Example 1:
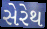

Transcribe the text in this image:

સેરેથ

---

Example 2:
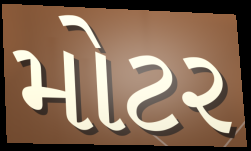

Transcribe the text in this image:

મોટર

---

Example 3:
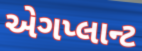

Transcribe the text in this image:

એગપ્લાન્ટ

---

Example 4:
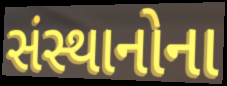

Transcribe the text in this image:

સંસ્થાનોના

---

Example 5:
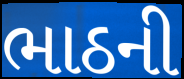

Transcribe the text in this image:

ભાઠની